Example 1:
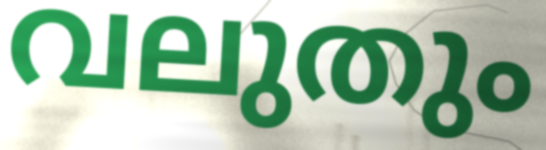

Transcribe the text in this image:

വലുതും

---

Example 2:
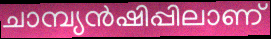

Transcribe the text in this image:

ചാമ്പ്യൻഷിപ്പിലാണ്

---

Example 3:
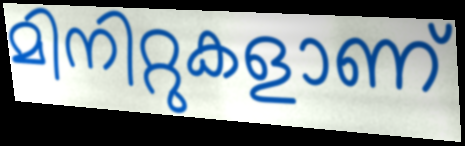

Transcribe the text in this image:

മിനിറ്റുകളാണ്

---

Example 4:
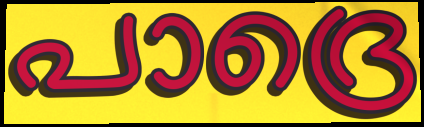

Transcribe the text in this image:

പാദ്രെ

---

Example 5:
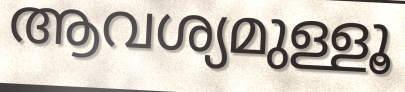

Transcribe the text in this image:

ആവശ്യമുള്ളൂ